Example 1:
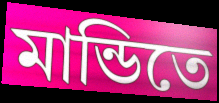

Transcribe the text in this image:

মান্ডিতে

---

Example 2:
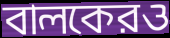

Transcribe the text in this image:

বালকেরও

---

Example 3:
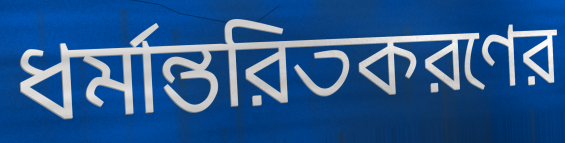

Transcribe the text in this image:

ধর্মান্তরিতকরণের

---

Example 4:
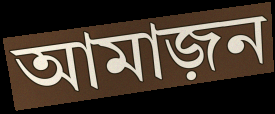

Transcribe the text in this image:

আমাজ়ন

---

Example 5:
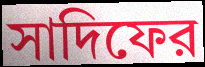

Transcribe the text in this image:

সাদিফের